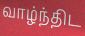
வாழ்ந்திட